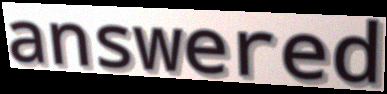
answered